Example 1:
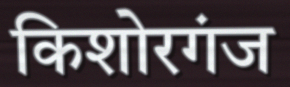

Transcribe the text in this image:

किशोरगंज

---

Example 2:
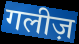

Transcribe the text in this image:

गलीज़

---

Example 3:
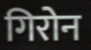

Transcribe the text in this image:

गिरोन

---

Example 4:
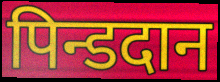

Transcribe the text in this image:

पिन्डदान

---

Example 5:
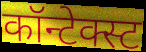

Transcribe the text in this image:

कॉन्टेक्स्ट